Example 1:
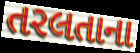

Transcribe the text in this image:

તરલતાના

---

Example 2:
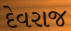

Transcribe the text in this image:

દેવરાજ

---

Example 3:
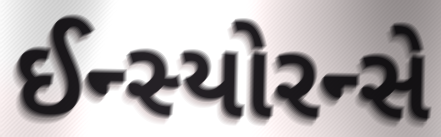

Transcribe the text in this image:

ઈન્સ્યોરન્સે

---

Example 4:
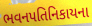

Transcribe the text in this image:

ભવનપતિનિકાયના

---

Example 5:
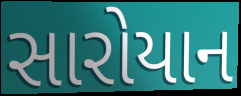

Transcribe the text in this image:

સારોયાન